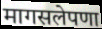
मागसलेपणा